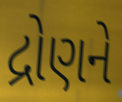
દ્રોણને